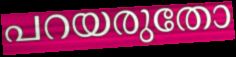
പറയരുതോ